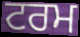
ਟਰਮ